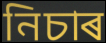
নিচাৰ